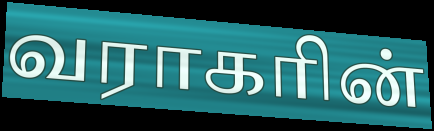
வராகரின்